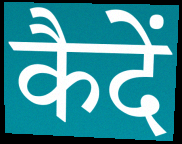
कैदें